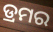
ଡ୍ରମର